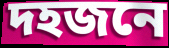
দহজনে